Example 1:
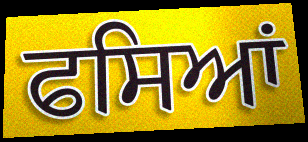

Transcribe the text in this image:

ਫਸਿਆਂ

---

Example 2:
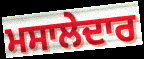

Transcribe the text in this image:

ਮਸਾਲੇਦਾਰ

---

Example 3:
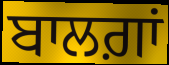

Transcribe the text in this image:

ਬਾਲਗ਼ਾਂ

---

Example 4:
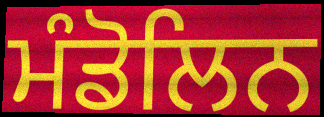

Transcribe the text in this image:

ਮੰਡੋਲਿਨ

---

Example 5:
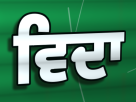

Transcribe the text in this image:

ਵਿਦਾ